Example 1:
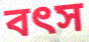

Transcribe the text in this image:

বৎস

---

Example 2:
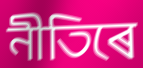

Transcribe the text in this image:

নীতিৰে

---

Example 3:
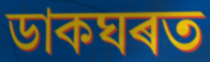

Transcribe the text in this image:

ডাকঘৰত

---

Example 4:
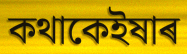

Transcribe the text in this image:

কথাকেইষাৰ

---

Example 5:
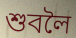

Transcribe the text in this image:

শুবলৈ